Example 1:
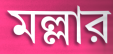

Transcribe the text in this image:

মল্লার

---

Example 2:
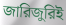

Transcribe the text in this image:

জারিজুরিই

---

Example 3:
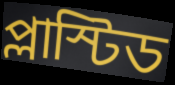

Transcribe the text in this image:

প্লাস্টিড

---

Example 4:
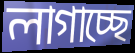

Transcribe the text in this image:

লাগাচ্ছে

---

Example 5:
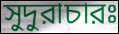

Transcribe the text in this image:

সুদুরাচারঃ